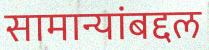
सामान्यांबद्दल